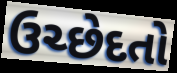
ઉચ્છેદતો